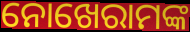
ନୋଖେରାମଙ୍କ